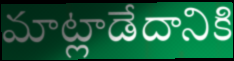
మాట్లాడేదానికి